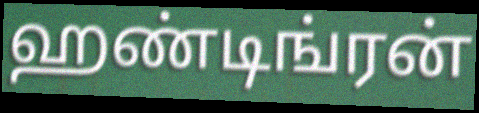
ஹண்டிங்ரன்